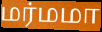
மர்மமா